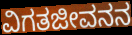
ವಿಗತಜೀವನನ